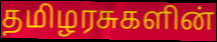
தமிழரசுகளின்